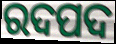
ରଦପଦ